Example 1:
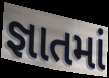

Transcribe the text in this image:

જ્ઞાતમાં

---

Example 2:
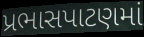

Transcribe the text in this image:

પ્રભાસપાટણમાં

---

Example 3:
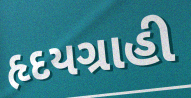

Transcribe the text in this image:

હૃદયગ્રાહી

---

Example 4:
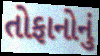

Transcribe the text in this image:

તોફાનોનું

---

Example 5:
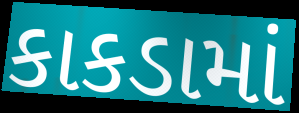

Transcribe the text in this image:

કાકડામાં